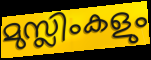
മുസ്ലിംകളും